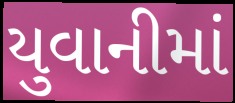
યુવાનીમાં